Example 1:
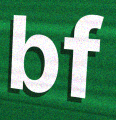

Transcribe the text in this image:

bf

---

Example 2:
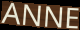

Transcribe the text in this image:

ANNE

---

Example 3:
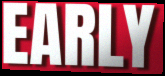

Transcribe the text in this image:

EARLY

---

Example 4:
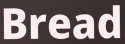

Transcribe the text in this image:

Bread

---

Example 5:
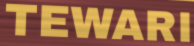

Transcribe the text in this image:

TEWARI